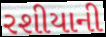
રશીયાની